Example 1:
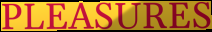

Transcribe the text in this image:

PLEASURES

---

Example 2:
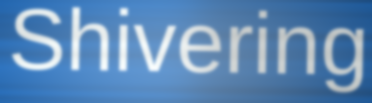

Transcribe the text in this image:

Shivering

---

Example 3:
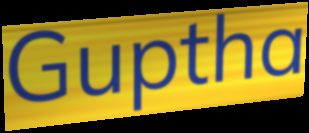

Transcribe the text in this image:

Guptha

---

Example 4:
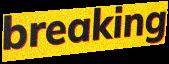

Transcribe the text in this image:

breaking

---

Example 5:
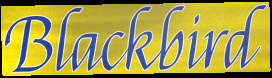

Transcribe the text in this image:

Blackbird